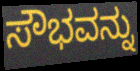
ಸೌಭವನ್ನು